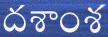
దశాంశ